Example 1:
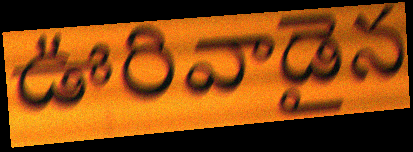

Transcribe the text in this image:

ఊరివాడైన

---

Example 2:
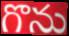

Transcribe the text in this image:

గొను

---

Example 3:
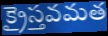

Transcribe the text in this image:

క్రైస్తవమత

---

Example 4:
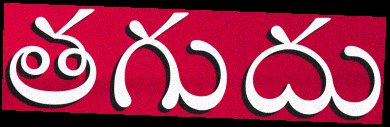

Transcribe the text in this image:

తగుదు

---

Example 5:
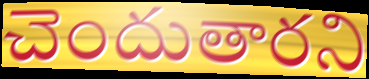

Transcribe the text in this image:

చెందుతారని